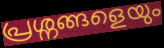
പ്രശ്നങ്ങളെയും